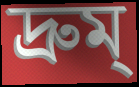
দ্রুম্